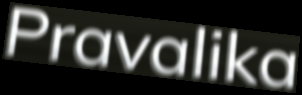
Pravalika